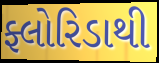
ફ્લોરિડાથી